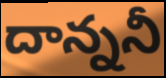
దాన్ననీ